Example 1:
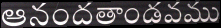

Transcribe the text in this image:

ఆనందతాండవము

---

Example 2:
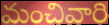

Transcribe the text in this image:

మంచివారి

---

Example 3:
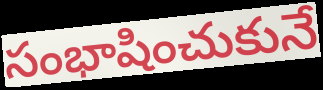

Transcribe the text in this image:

సంభాషించుకునే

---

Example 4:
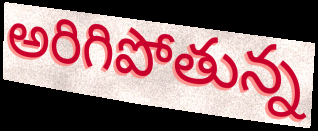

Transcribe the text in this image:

అరిగిపోతున్న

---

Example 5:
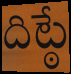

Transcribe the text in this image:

దిట్ఠే